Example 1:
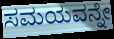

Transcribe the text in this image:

ಸಮಯವನ್ನೇ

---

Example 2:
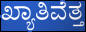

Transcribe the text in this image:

ಖ್ಯಾತಿವೆತ್ತ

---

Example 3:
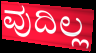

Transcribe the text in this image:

ವುದಿಲ್ಲ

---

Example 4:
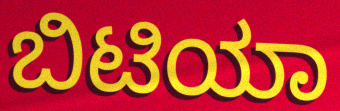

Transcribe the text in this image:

ಬಿಟಿಯಾ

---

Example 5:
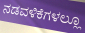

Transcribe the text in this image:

ನಡವಳಿಕೆಗಳಲ್ಲೂ